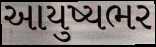
આયુષ્યભર